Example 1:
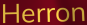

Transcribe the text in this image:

Herron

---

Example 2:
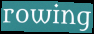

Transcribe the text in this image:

rowing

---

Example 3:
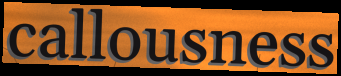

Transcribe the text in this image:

callousness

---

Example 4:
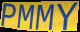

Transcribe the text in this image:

PMMY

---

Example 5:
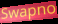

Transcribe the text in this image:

Swapno